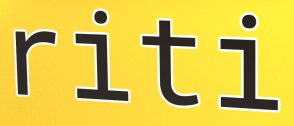
riti